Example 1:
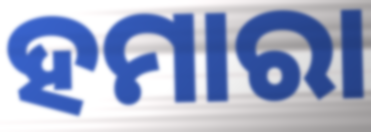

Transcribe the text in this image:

ହମାରା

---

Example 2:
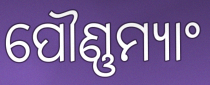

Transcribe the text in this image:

ପୌଣ୍ଣମ୍ୟାଂ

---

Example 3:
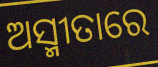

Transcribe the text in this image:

ଅସ୍ମୀତାରେ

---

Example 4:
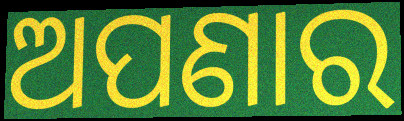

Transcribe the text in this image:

ଅପଣାର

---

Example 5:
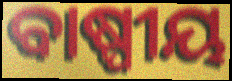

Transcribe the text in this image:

ବାଷ୍ପୀୟ